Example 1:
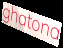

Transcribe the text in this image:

ghatona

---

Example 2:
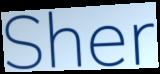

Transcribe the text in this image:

Sher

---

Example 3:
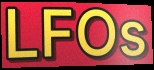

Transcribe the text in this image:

LFOs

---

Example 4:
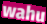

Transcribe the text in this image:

wahu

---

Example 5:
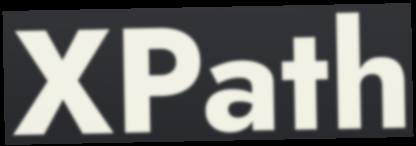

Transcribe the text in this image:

XPath